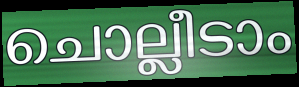
ചൊല്ലീടാം